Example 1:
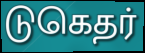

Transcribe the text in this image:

டுகெதர்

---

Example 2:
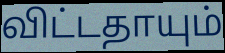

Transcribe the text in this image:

விட்டதாயும்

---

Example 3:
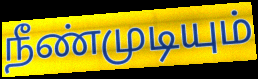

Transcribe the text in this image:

நீண்முடியும்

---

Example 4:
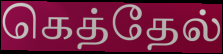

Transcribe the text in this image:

கெத்தேல்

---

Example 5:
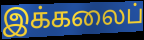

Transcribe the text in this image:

இக்கலைப்